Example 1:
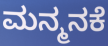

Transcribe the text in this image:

ಮನ್ಮನಕೆ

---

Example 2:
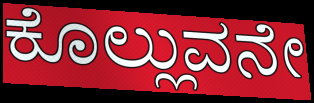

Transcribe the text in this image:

ಕೊಲ್ಲುವನೇ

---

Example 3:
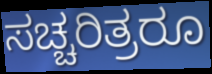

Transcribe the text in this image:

ಸಚ್ಚರಿತ್ರರೂ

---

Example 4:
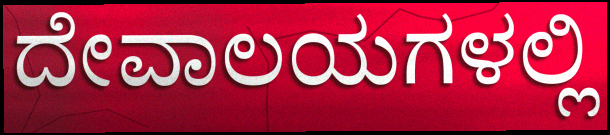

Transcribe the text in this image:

ದೇವಾಲಯಗಳಲ್ಲಿ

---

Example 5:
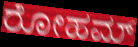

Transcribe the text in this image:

ರೋಹಮ್